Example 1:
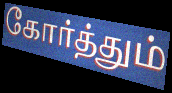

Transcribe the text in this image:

கோர்த்தும்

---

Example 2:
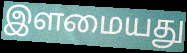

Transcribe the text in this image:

இளமையது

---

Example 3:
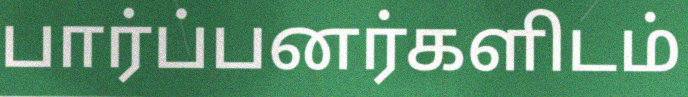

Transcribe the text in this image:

பார்ப்பனர்களிடம்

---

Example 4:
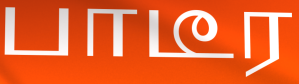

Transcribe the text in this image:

பாடீர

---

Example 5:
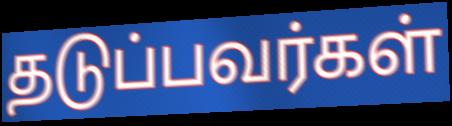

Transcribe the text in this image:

தடுப்பவர்கள்